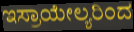
ಇಸ್ರಾಯೇಲ್ಯರಿಂದ